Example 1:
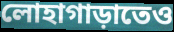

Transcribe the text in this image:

লোহাগাড়াতেও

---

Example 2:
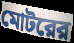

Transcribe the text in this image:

মোটরের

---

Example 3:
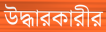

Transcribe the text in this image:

উদ্ধারকারীর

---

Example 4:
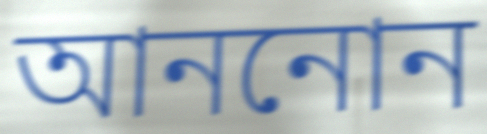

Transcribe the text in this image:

আননোন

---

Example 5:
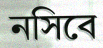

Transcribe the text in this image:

নসিবে